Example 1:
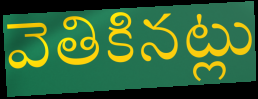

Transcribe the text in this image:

వెతికినట్లు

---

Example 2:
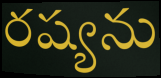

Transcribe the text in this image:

రష్యను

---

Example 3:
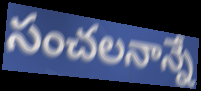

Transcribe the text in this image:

సంచలనాన్నే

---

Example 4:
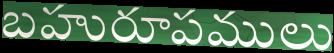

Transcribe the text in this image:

బహురూపములు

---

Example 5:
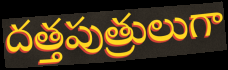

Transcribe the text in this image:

దత్తపుత్రులుగా